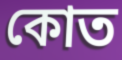
কোত